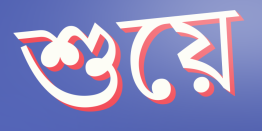
শুয়ে